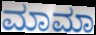
ಮಾಮಾ